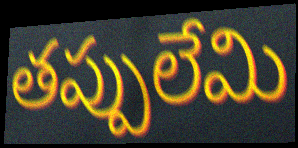
తప్పులేమి